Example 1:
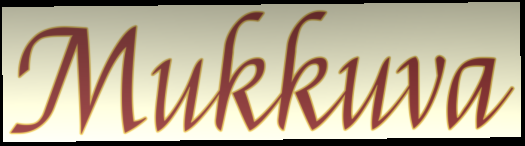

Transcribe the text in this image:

Mukkuva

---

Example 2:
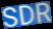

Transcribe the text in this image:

SDR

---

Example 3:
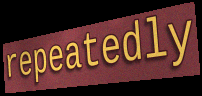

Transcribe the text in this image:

repeatedly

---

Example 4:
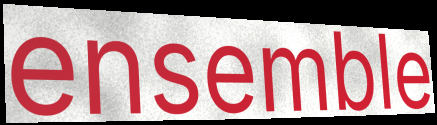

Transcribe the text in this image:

ensemble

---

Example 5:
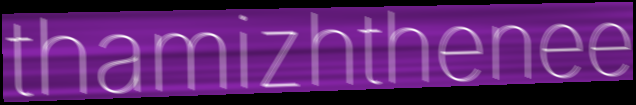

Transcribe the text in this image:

thamizhthenee